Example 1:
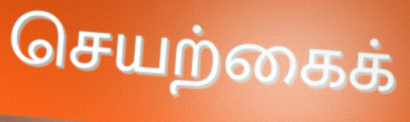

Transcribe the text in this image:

செயற்கைக்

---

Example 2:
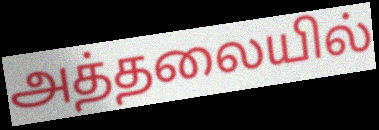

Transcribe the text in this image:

அத்தலையில்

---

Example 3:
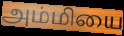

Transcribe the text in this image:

அம்மியை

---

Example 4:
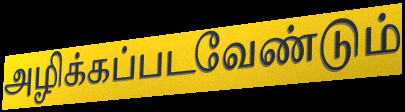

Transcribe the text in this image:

அழிக்கப்படவேண்டும்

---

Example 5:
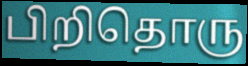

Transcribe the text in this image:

பிறிதொரு